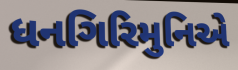
ધનગિરિમુનિએ